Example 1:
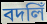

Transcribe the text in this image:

বদলিঁ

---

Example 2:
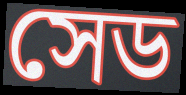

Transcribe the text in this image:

সেড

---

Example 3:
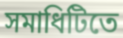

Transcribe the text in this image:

সমাধিটিতে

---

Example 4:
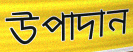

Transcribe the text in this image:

উপাদান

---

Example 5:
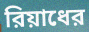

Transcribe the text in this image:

রিয়াধের